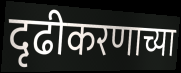
दृढीकरणाच्या